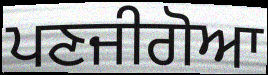
ਪਣਜੀਗੋਆ